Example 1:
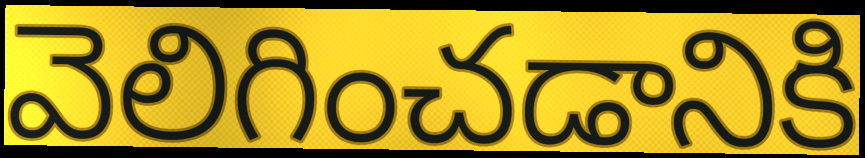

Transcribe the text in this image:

వెలిగించడానికి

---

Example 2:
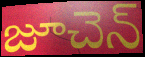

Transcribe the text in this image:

జూచెన్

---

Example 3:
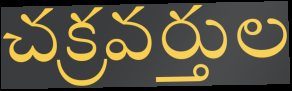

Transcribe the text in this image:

చక్రవర్తుల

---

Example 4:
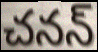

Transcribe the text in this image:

చనన్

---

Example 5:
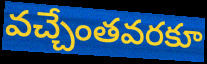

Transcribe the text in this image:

వచ్చేంతవరకూ